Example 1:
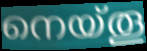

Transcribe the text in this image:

നെയ്തൂ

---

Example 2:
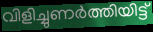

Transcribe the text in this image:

വിളിച്ചുണർത്തിയിട്ട്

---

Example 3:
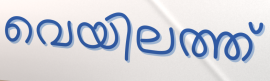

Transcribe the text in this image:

വെയിലത്ത്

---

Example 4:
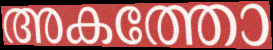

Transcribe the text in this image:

അകത്തോ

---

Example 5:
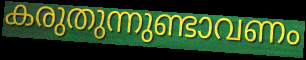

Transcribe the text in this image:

കരുതുന്നുണ്ടാവണം